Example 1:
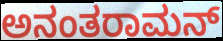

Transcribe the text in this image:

ಅನಂತರಾಮನ್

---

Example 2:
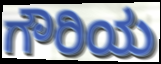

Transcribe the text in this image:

ಗೌರಿಯ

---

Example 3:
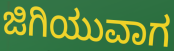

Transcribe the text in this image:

ಜಿಗಿಯುವಾಗ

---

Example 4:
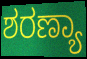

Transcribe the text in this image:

ಶರಣ್ಯಾ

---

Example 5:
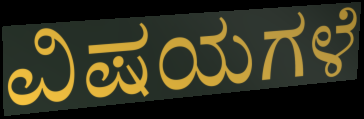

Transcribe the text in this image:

ವಿಷಯಗಳೆ